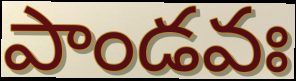
పాండవః